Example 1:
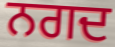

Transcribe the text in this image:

ਨਗਦ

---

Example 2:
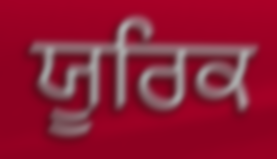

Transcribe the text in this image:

ਯੂਰਿਕ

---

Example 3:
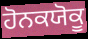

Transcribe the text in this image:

ਹੋਨਕਯੋਕੂ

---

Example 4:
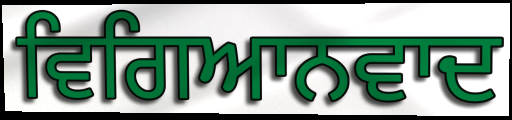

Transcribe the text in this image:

ਵਿਗਿਆਨਵਾਦ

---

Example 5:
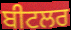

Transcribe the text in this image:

ਬੀਟਲਰ